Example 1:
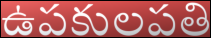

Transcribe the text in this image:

ఉపకులపతి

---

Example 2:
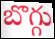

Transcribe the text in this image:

బొగ్గు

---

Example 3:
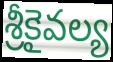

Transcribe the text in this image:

శ్రీకైవల్య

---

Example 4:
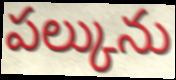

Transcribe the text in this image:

పల్కును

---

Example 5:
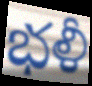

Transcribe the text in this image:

భళీ